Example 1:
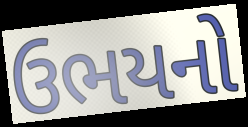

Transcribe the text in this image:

ઉભયનો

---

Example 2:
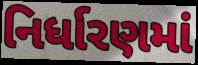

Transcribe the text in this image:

નિર્ધારણમાં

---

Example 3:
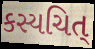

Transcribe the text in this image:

કસ્યચિત્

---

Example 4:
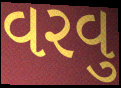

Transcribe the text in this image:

વરવુ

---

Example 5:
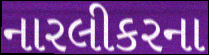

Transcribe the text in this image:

નારલીકરના